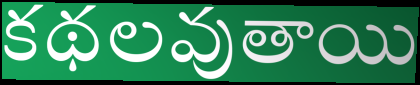
కథలవుతాయి